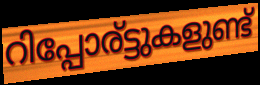
റിപ്പോര്ട്ടുകളുണ്ട്